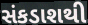
સંકડાશથી